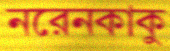
নরেনকাকু